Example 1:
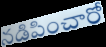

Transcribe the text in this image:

నడిపించారో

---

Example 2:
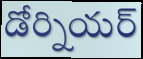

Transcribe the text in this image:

డోర్నియర్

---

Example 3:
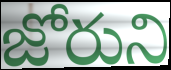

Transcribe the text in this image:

జోరుని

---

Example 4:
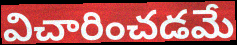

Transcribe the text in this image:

విచారించడమే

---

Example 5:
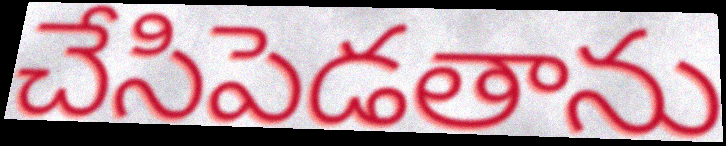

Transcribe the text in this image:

చేసిపెడతాను